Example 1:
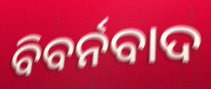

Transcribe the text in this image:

ବିବର୍ନବାଦ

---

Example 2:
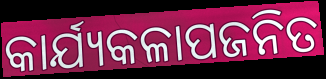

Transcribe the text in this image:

କାର୍ଯ୍ୟକଳାପଜନିତ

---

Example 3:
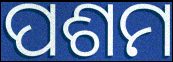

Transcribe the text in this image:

ପଶମ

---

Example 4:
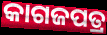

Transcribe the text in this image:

କାଗଜପତ୍ର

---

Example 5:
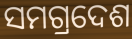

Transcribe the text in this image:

ସମଗ୍ରଦେଶ